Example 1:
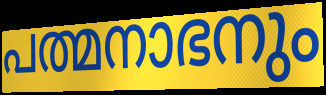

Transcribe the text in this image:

പത്മനാഭനും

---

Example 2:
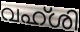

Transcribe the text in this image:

വഹ്ശി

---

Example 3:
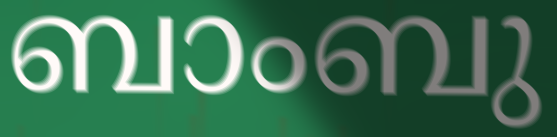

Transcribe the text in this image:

ബാംബു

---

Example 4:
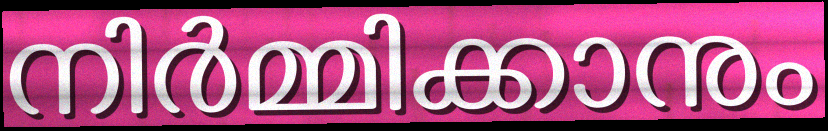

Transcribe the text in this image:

നിർമ്മിക്കാനും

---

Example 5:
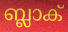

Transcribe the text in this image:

ബ്ലാക്